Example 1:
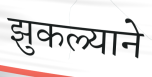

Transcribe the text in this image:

झुकल्याने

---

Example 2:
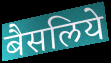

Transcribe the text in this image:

बैसलिये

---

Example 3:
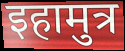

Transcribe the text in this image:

इहामुत्र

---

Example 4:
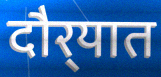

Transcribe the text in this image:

दौर्‍यात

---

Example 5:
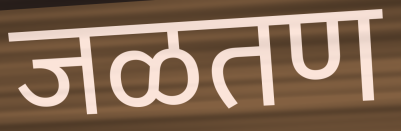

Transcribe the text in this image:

जळतण